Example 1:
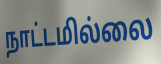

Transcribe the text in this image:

நாட்டமில்லை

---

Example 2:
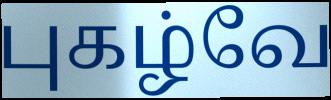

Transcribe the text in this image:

புகழ்வே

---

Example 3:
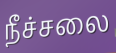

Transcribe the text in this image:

நீச்சலை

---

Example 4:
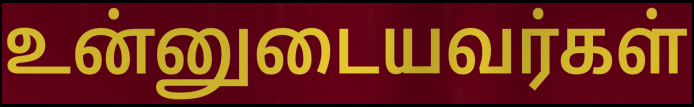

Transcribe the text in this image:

உன்னுடையவர்கள்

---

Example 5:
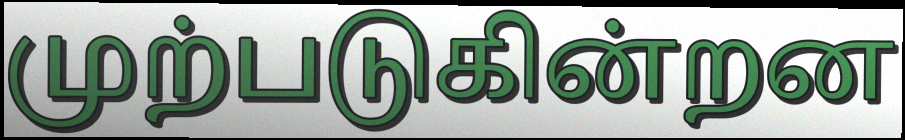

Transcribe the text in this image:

முற்படுகின்றன